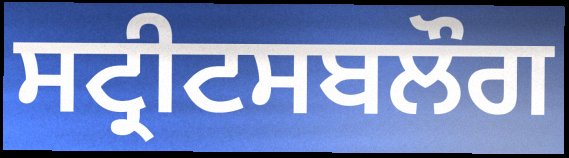
ਸਟ੍ਰੀਟਸਬਲੌਗ